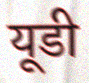
यूडी